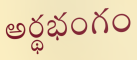
అర్థభంగం